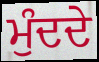
ਮੁੰਦਦੇ